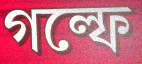
গল্ফে